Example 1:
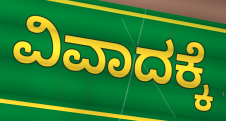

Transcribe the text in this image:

ವಿವಾದಕ್ಕೆ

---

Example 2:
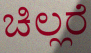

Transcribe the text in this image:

ಚಿಲ್ಲರೆ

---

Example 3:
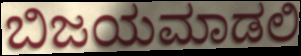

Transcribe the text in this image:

ಬಿಜಯಮಾಡಲಿ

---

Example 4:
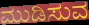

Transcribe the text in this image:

ಮುಡಿಸುವ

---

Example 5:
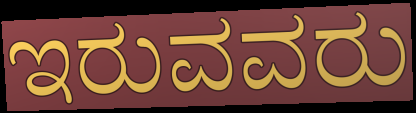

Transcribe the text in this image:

ಇರುವವರು